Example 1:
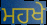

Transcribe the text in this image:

ਮਹਖੇ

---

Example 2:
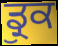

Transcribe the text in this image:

ਡ੍ਰੁਕ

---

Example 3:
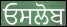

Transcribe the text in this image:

ਓਸਲੋਬ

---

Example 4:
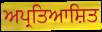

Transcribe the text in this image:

ਅਪ੍ਰਤਿਆਸ਼ਿਤ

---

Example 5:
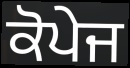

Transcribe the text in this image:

ਕੋਪੇਜ